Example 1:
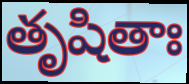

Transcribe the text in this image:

తృషితాః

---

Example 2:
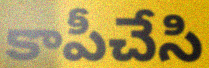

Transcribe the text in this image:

కాపీచేసి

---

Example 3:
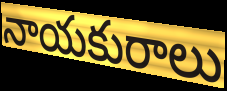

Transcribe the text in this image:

నాయకురాలు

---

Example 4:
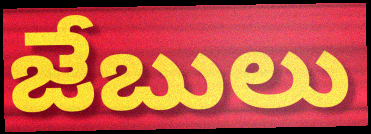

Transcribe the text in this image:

జేబులు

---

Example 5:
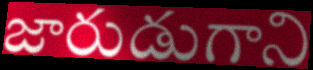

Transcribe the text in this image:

జారుడుగాని